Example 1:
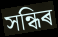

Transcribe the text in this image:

সন্ধিৰ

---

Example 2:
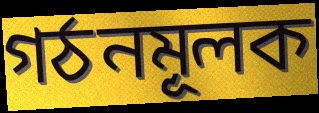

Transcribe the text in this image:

গঠনমূলক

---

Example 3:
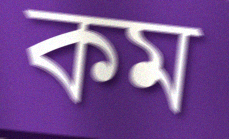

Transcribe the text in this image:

কম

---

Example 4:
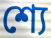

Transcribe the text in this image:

শ্যে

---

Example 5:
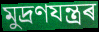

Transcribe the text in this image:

মুদ্ৰণযন্ত্ৰৰ